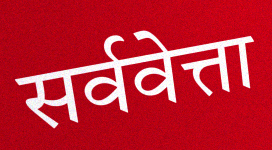
सर्ववेत्ता